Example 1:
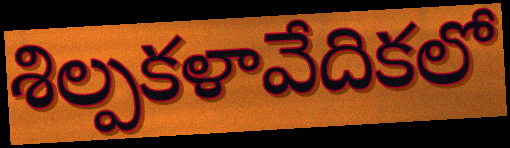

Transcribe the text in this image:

శిల్పకళావేదికలో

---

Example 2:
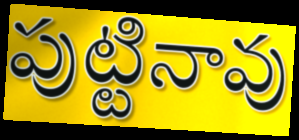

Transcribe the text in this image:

పుట్టినావు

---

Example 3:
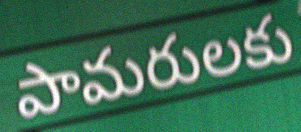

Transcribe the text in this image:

పామరులకు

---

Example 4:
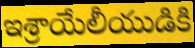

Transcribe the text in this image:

ఇశ్రాయేలీయుడికి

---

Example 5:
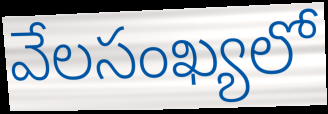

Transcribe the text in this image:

వేలసంఖ్యలో